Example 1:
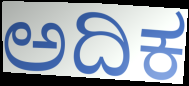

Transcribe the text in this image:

ಅದಿಕ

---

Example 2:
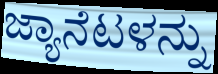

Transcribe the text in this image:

ಜ್ಯಾನೆಟಳನ್ನು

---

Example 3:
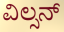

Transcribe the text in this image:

ವಿಲ್ಸನ್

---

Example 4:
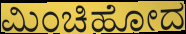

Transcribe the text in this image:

ಮಿಂಚಿಹೋದ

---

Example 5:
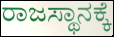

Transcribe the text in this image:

ರಾಜಸ್ಥಾನಕ್ಕೆ